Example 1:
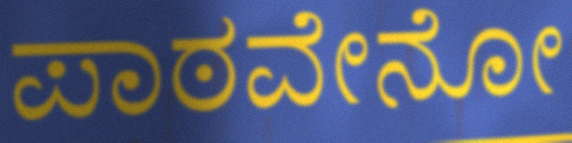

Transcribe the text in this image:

ಪಾಠವೇನೋ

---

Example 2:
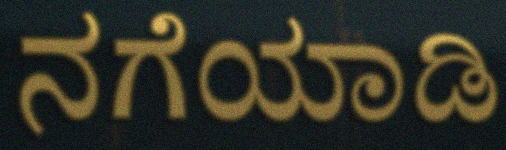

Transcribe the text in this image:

ನಗೆಯಾಡಿ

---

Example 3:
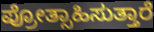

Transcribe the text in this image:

ಪ್ರೋತ್ಸಾಹಿಸುತ್ತಾರೆ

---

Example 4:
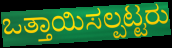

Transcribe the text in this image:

ಒತ್ತಾಯಿಸಲ್ಪಟ್ಟರು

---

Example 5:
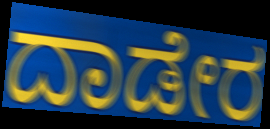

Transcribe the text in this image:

ದಾಡೇರ